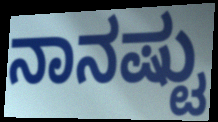
ನಾನಷ್ಟು